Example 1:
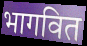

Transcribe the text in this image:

भागवित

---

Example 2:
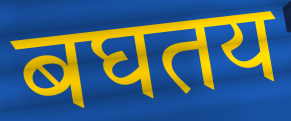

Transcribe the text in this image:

बघतय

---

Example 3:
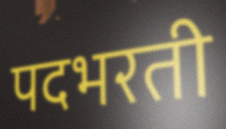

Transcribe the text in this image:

पदभरती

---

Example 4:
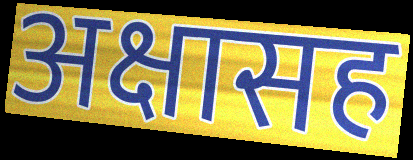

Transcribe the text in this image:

अक्षासह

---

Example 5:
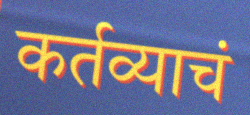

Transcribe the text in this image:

कर्तव्याचं